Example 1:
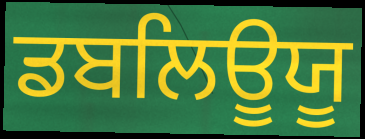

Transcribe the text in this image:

ਡਬਲਿਊਯੂ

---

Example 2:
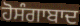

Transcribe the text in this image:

ਹੋਸੰਗਾਬਾਦ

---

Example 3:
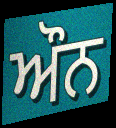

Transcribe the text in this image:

ਔਨ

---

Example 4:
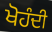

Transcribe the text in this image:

ਖੋਹੰਦੀ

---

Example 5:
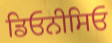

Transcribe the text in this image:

ਡਿਓਨੀਸਿਓ